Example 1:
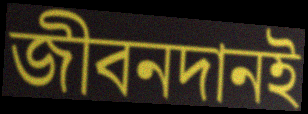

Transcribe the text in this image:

জীবনদানই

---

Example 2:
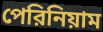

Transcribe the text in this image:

পেরিনিয়াম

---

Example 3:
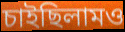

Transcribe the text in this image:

চাইছিলামও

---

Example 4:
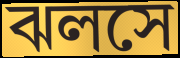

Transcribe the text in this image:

ঝলসে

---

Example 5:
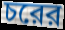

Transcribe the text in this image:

চরের